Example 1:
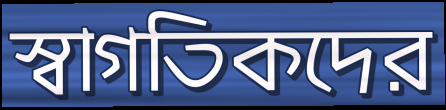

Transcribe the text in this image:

স্বাগতিকদের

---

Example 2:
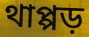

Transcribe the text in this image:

থাপ্পড়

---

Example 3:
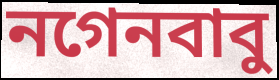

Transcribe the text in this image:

নগেনবাবু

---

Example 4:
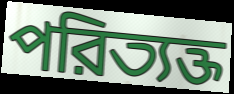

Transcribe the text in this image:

পরিত্যক্ত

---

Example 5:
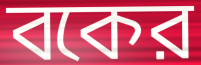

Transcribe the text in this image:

বকের